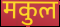
मकुल